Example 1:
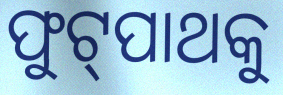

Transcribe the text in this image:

ଫୁଟ୍‌ପାଥକୁ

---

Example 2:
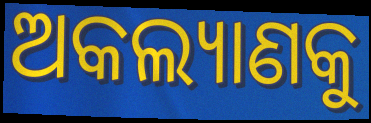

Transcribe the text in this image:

ଅକଲ୍ୟାଣକୁ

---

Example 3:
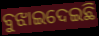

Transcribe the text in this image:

ବୁଝାଇଦେଇଛି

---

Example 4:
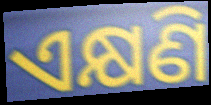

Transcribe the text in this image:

ଏକ୍ଷଣି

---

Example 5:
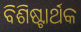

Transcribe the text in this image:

ବିଶିଷ୍ଟାର୍ଥକ